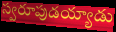
స్వరూపుడయ్యాడు